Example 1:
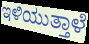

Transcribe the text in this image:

ಇಳಿಯುತ್ತಾಳೆ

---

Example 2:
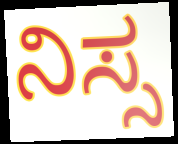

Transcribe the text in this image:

ನಿಸ್ಸ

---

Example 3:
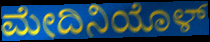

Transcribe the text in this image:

ಮೇದಿನಿಯೊಳ್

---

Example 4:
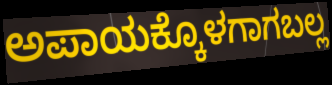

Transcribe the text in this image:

ಅಪಾಯಕ್ಕೊಳಗಾಗಬಲ್ಲ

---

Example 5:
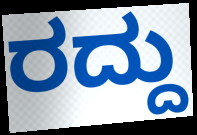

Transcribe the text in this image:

ರದ್ದು